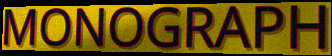
MONOGRAPH